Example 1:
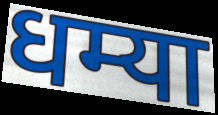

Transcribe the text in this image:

धम्या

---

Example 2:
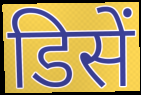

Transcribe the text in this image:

डिसें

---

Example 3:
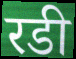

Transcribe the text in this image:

रडी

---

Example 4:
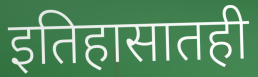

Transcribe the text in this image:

इतिहासातही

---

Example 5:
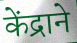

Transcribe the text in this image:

केंद्राने